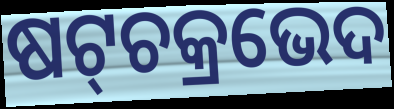
ଷଟ୍‌ଚକ୍ରଭେଦ